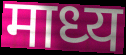
माध्‍य